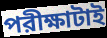
পরীক্ষাটাই